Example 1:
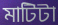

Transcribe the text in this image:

মাটিটা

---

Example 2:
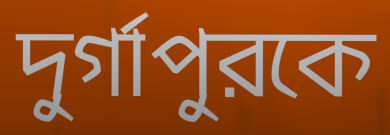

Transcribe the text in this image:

দুর্গাপুরকে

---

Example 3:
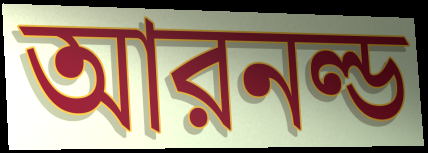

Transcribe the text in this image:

আরনল্ড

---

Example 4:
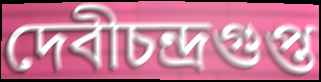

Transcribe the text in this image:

দেবীচন্দ্রগুপ্ত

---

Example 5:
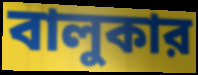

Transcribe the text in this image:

বালুকার